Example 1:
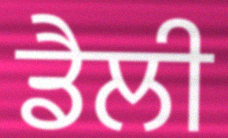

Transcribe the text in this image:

ਡੈਲੀ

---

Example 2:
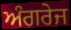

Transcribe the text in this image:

ਅੰਗਰੇਜ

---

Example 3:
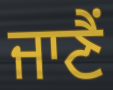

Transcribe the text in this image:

ਜਾਣੈਂ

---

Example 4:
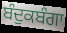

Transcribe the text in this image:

ਬੰਦੁਕਬੰਗਾ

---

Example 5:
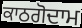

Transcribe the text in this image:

ਕਾਠਗੋਦਾਮ